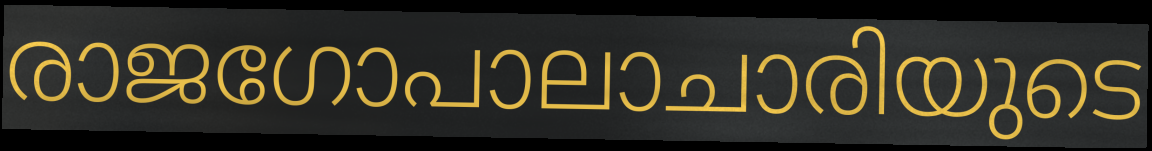
രാജഗോപാലാചാരിയുടെ